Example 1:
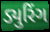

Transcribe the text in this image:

ડ્યુરિંગ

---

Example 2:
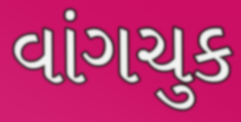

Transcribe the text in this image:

વાંગચુક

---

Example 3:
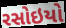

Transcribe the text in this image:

રસોઇયો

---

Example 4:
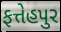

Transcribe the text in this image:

ફત્તેહપુર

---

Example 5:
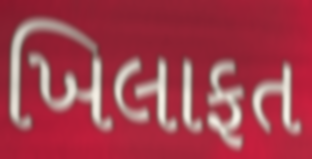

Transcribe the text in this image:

ખિલાફત